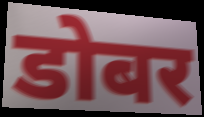
डोबर